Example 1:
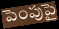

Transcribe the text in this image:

పెంపుపై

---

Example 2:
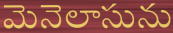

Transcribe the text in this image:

మెనెలాసును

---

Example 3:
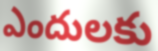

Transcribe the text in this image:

ఎందులకు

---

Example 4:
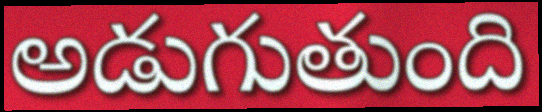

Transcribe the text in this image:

అడుగుతుంది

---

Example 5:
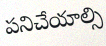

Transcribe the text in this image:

పనిచేయాల్సి